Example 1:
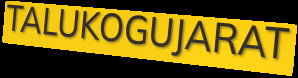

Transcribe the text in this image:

TALUKOGUJARAT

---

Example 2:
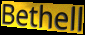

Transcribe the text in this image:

Bethell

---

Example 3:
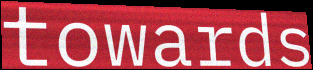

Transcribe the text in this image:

towards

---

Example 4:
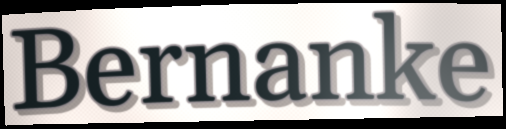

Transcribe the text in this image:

Bernanke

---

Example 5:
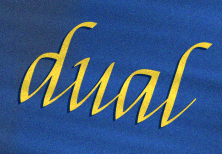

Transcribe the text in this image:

dual